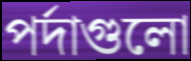
পর্দাগুলো